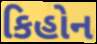
કિહોન